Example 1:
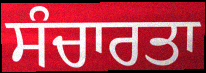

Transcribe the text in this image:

ਸੰਚਾਰਤਾ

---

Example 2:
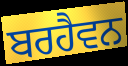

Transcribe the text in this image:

ਬਰਹੈਵਨ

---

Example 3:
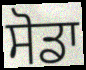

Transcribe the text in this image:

ਸੋਡਾ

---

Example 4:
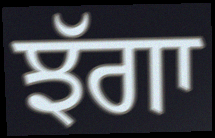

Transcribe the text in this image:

ਝੱਗਾ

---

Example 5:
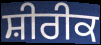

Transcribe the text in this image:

ਸ਼ੀਰੀਕ